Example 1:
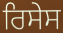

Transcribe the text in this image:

ਰਿਸੇਸ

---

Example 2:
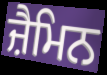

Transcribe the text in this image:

ਜ਼ੈਮਿਨ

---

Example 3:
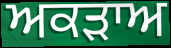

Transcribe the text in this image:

ਅਕੜਾਅ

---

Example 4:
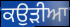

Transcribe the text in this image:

ਕਉੜੀਆ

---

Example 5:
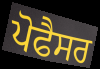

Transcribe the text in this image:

ਪੋਫੈਸਰ